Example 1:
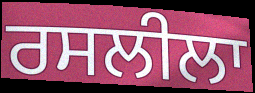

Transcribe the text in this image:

ਰਸਲੀਲਾ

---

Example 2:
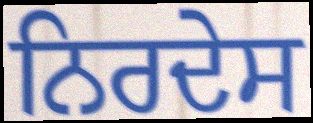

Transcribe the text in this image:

ਨਿਰਦੇਸ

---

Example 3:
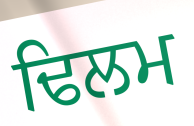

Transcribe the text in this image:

ਢਿਲਮ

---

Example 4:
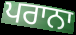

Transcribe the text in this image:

ਪਰਾਨਾ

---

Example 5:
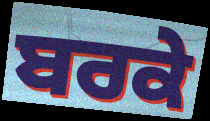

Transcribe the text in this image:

ਬਰਕੇ